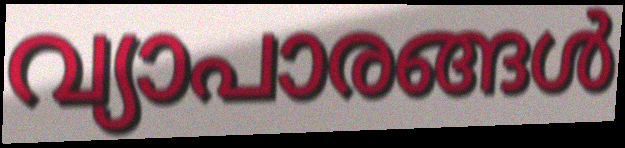
വ്യാപാരങ്ങൾ